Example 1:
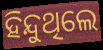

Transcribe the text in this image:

ହିନ୍ଦୁଥିଲେ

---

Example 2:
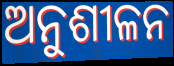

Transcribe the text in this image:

ଅନୁଶୀଳନ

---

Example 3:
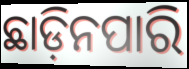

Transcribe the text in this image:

ଛାଡ଼ିନପାରି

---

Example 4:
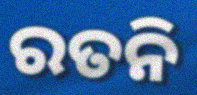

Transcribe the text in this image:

ରତନି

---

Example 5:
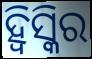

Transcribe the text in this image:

ହ୍ୱିସ୍କିର